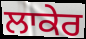
ਲਾਕੇਰ